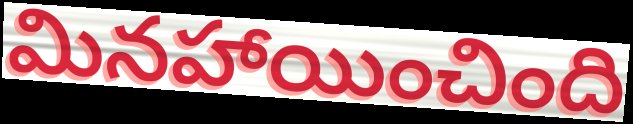
మినహాయించింది